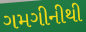
ગમગીનીથી